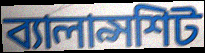
ব্যালান্সশিট